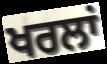
ਖਰਲਾਂ